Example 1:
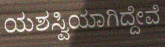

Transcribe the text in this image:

ಯಶಸ್ವಿಯಾಗಿದ್ದೇವೆ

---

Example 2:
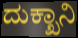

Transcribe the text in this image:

ದುಕ್ಖಾನಿ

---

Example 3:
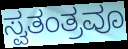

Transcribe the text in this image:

ಸ್ವತಂತ್ರವೂ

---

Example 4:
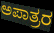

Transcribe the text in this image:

ಅಪಾತ್ರರ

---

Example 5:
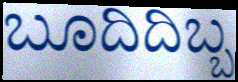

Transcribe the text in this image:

ಬೂದಿದಿಬ್ಬ